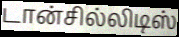
டான்சில்லிடிஸ்